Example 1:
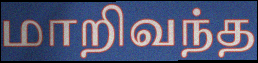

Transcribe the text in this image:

மாறிவந்த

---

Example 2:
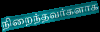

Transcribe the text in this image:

நிறைந்தவர்களாக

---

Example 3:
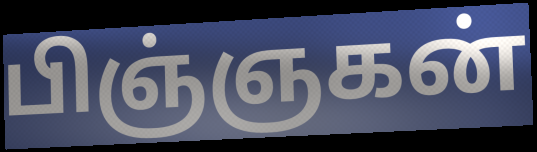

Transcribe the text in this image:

பிஞ்ஞகன்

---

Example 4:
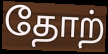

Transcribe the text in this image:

தோற்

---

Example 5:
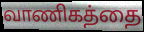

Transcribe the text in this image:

வாணிகத்தை